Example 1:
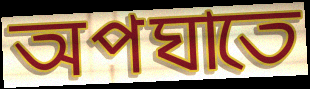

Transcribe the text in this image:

অপঘাতে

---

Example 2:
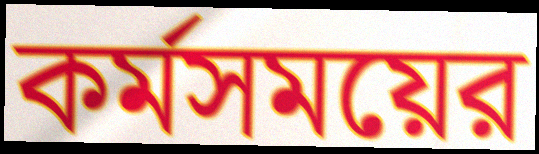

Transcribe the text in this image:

কর্মসময়ের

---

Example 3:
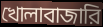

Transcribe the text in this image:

খোলাবাজারি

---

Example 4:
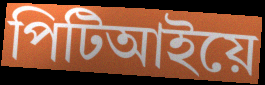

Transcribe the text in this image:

পিটিআইয়ে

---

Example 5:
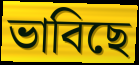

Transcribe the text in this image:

ভাবিছে